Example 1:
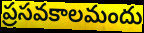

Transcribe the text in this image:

ప్రసవకాలమందు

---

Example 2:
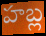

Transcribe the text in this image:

హబ్ల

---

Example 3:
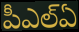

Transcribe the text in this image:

పీఎల్ఏ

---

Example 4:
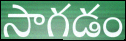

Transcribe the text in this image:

సాగడం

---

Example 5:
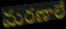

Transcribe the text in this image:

మరణాలే